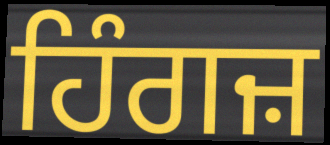
ਹਿੰਗਜ਼